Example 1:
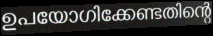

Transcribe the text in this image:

ഉപയോഗിക്കേണ്ടതിന്റെ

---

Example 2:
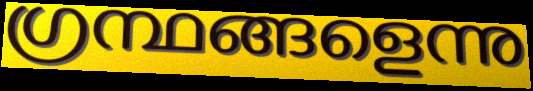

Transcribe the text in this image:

ഗ്രന്ഥങ്ങളെന്നു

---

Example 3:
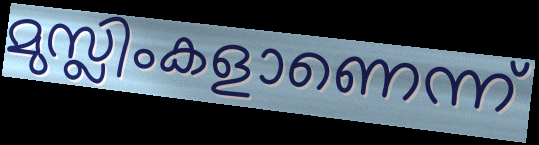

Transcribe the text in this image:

മുസ്ലിംകളാണെന്ന്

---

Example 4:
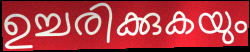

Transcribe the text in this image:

ഉച്ചരിക്കുകയും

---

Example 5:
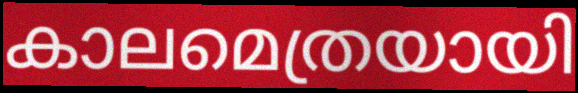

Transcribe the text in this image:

കാലമെത്രയായി